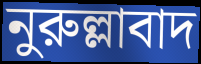
নুরুল্লাবাদ